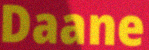
Daane